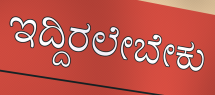
ಇದ್ದಿರಲೇಬೇಕು